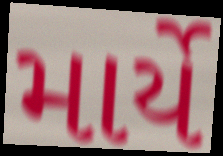
માર્યે